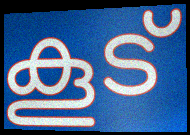
കൂട്